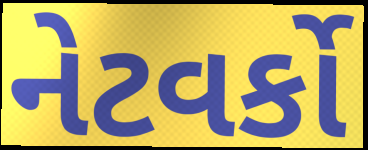
નેટવર્કો